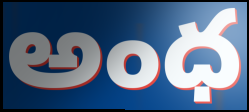
అంధ